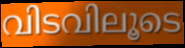
വിടവിലൂടെ